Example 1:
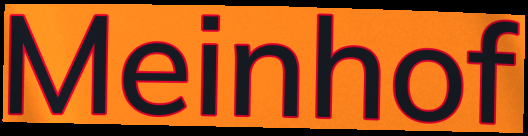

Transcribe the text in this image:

Meinhof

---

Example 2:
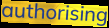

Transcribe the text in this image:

authorising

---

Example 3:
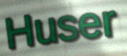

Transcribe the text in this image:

Huser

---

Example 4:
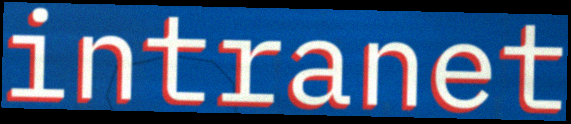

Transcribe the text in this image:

intranet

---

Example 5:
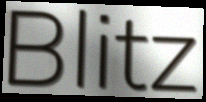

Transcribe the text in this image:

Blitz